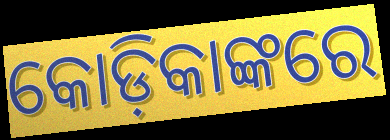
କୋଡ଼ିକାଙ୍କରେ